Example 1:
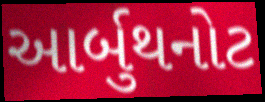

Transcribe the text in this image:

આર્બુથનોટ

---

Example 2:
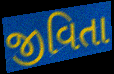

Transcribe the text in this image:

જીવિતા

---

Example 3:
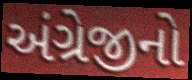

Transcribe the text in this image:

અંગ્રેજીનો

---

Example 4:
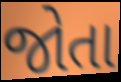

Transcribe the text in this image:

જોતા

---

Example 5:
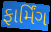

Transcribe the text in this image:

ફાર્મિંગ